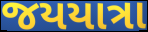
જયયાત્રા